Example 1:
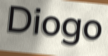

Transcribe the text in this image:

Diogo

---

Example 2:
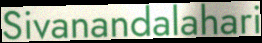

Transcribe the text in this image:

Sivanandalahari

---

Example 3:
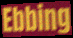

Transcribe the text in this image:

Ebbing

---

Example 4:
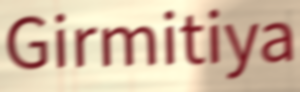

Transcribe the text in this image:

Girmitiya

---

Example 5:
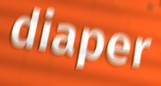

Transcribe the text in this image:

diaper